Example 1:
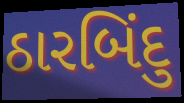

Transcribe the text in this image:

ઠારબિંદુ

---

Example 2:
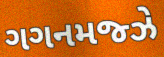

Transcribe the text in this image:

ગગનમજ્ઝે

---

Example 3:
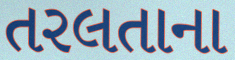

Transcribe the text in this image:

તરલતાના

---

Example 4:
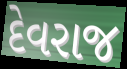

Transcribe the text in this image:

દેવરાજ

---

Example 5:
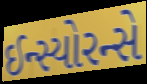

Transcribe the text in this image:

ઈન્સ્યોરન્સે